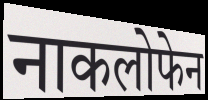
नाकलोफेन